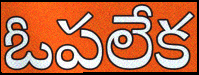
ఓపలేక